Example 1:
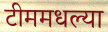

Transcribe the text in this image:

टीममधल्या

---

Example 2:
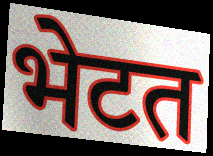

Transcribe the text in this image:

भेटत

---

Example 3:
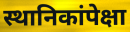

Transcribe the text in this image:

स्थानिकांपेक्षा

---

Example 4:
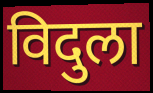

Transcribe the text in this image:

विदुला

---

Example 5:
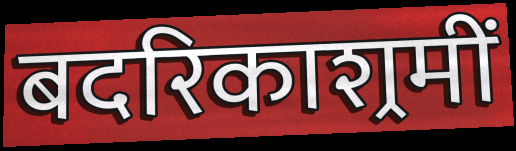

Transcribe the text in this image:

बदरिकाश्रमीं